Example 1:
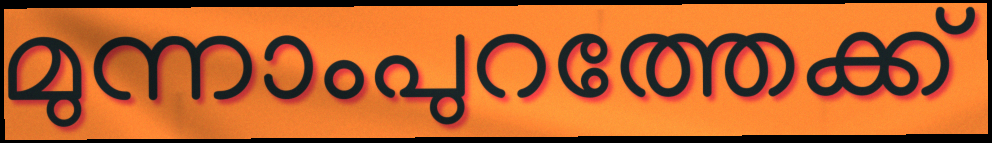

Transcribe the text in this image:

മുന്നാംപുറത്തേക്ക്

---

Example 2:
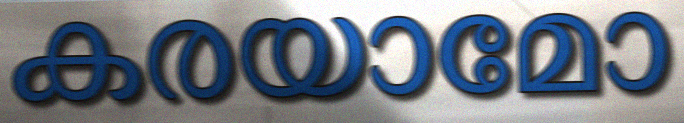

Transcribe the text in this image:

കരയാമോ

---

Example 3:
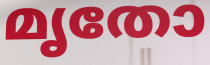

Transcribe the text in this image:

മൃതോ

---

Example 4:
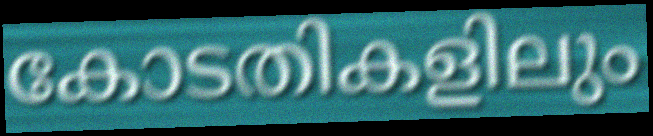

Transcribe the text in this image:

കോടതികളിലും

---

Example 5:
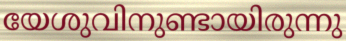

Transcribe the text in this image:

യേശുവിനുണ്ടായിരുന്നു